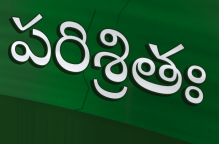
పరిశ్రితః